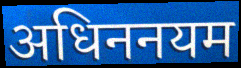
अधिननयम